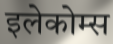
इलेकोम्स